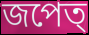
জপেত্